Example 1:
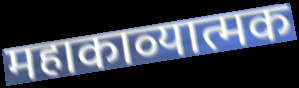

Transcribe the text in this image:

महाकाव्‍यात्‍मक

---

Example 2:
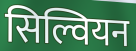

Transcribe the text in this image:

सिल्वियन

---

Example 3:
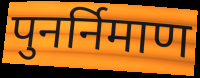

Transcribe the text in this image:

पुनर्निमाण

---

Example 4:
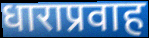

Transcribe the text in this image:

धाराप्रवाह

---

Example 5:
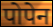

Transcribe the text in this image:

पोपेन